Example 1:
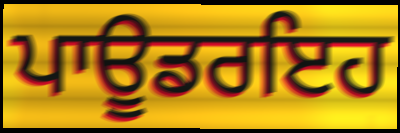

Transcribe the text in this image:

ਪਾਊਡਰਇਹ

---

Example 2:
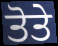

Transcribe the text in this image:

ਤੋਤੇ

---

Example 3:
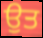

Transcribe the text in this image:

ਉਤ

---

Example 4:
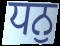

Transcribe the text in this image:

ਧਨੁ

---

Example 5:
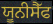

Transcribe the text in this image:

ਯੂਨੀਸੈੱਫ